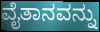
ವೈತಾನವನ್ನು